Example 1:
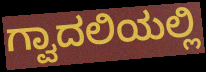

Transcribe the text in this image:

ಗ್ವಾದಲಿಯಲ್ಲಿ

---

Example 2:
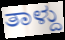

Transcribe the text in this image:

ತಾಳ್ದು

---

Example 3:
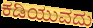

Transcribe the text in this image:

ಕಡಿಯುವದು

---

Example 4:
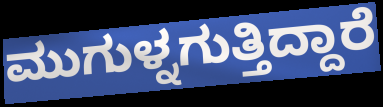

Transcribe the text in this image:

ಮುಗುಳ್ನಗುತ್ತಿದ್ದಾರೆ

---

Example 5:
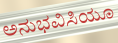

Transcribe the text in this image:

ಅನುಭವಿಸಿಯೂ